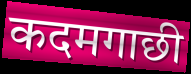
कदमगाछी